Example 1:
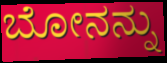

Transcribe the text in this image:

ಬೋನನ್ನು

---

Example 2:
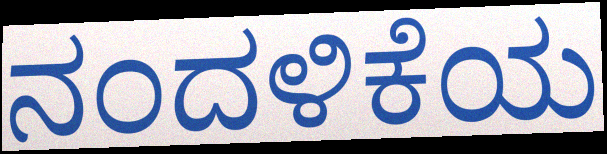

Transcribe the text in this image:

ನಂದಳಿಕೆಯ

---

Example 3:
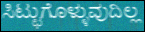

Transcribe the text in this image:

ಸಿಟ್ಟುಗೊಳ್ಳುವುದಿಲ್ಲ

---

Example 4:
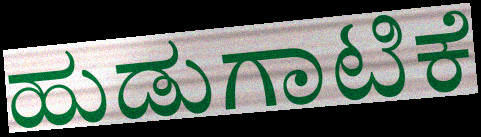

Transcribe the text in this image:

ಹುಡುಗಾಟಿಕೆ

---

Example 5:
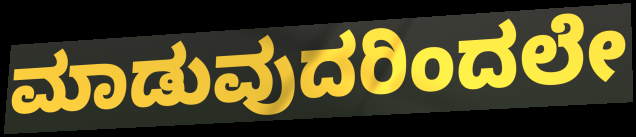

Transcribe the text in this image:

ಮಾಡುವುದರಿಂದಲೇ